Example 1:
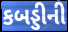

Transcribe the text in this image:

કબડ્ડીની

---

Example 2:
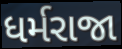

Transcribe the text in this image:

ધર્મરાજા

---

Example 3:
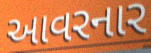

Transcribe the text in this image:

આવરનાર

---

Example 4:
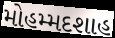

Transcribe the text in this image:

મોહમ્મદશાહ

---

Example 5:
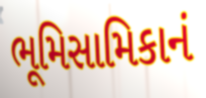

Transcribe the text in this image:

ભૂમિસામિકાનં